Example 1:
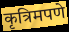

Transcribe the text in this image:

कृत्रिमपणे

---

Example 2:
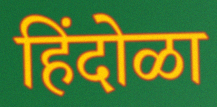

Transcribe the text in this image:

हिंदोळा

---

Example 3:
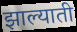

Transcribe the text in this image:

झाल्याती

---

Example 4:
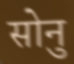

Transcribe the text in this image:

सोनु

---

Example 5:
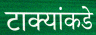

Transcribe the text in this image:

टाक्यांकडे